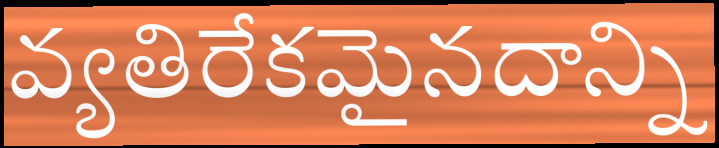
వ్యతిరేకమైనదాన్ని